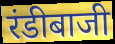
रंडीबाजी